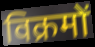
विक्रमों